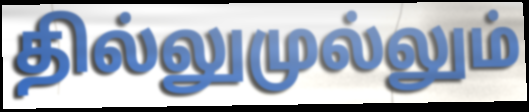
தில்லுமுல்லும்